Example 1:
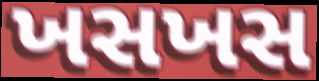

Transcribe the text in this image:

ખસખસ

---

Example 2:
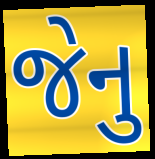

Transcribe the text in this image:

જેનુ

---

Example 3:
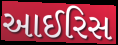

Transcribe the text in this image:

આઈરિસ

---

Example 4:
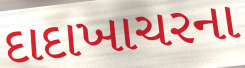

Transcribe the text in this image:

દાદાખાચરના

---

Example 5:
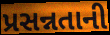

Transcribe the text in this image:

પ્રસન્નતાની